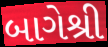
બાગેશ્રી